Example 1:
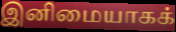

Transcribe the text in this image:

இனிமையாகக்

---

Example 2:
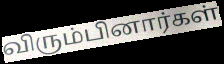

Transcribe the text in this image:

விரும்பினார்கள்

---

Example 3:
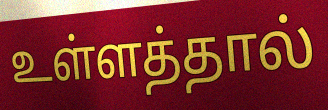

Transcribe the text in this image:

உள்ளத்தால்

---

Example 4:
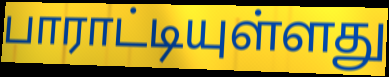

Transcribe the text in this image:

பாராட்டியுள்ளது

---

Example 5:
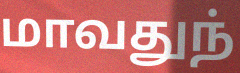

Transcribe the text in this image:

மாவதுந்